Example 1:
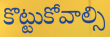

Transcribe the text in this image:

కొట్టుకోవాల్సి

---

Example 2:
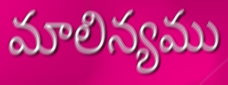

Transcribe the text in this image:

మాలిన్యము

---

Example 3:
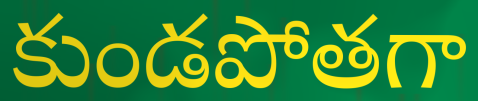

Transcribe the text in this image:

కుండపోతగా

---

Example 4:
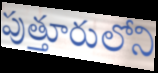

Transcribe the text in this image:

పుత్తూరులోని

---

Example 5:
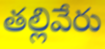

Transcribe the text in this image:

తల్లివేరు